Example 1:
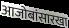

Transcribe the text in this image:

आजोबांसारखा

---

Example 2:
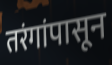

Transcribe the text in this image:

तरंगांपासून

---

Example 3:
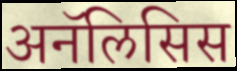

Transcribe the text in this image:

अनॅलिसिस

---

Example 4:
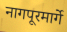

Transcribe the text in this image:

नागपूरमार्गे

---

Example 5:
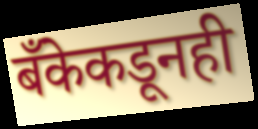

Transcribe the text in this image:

बँकेकडूनही